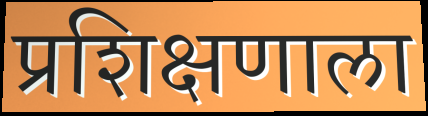
प्रशिक्षणाला